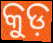
କୁଡ଼